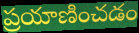
ప్రయాణించడం